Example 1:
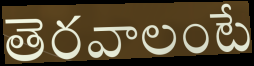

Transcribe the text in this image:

తెరవాలంటే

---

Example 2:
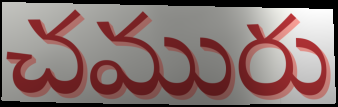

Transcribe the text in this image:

చమురు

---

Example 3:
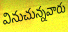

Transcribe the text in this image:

వినుచున్నవారు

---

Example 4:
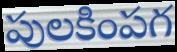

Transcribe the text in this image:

పులకింపగ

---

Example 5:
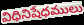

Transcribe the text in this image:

విధినిషేధములు